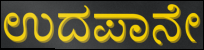
ಉದಪಾನೇ